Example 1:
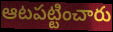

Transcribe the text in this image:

ఆటపట్టించారు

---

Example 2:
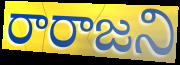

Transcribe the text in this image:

రారాజని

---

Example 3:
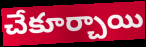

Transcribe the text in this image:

చేకూర్చాయి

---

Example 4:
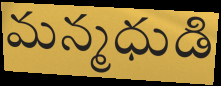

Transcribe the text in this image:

మన్మధుడి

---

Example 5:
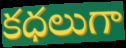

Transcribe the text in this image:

కధలుగా